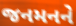
જનમનને